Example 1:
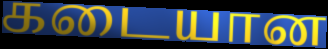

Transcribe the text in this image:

கடையான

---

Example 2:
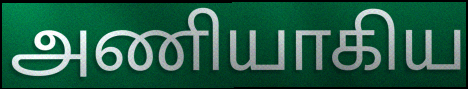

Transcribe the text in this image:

அணியாகிய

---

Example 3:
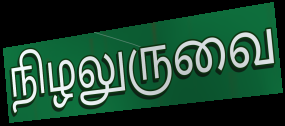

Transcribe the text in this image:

நிழலுருவை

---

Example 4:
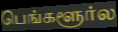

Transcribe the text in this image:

பெங்களூர்ல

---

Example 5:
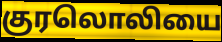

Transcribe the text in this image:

குரலொலியை